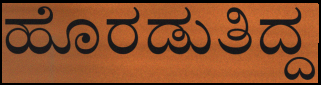
ಹೊರಡುತಿದ್ದ